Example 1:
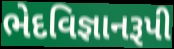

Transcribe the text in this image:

ભેદવિજ્ઞાનરૂપી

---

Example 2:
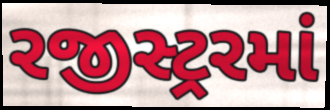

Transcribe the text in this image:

રજીસ્ટ્રરમાં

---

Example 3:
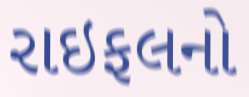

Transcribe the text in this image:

રાઇફલનો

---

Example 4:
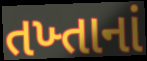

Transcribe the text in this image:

તખ્તાનાં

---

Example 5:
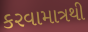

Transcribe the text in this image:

કરવામાત્રથી